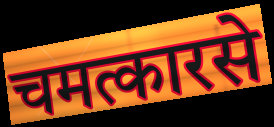
चमत्कारसे